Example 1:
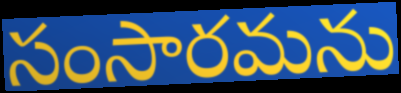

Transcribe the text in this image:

సంసారమను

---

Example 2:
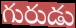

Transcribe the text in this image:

గురుడు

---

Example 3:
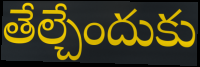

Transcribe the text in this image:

తేల్చేందుకు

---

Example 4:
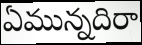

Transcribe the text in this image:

ఏమున్నదిరా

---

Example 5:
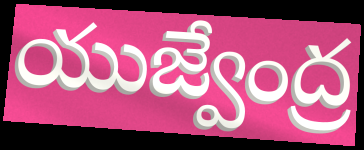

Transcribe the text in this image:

యుజ్వేంద్ర